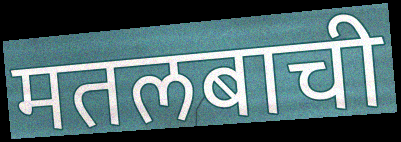
मतलबाची